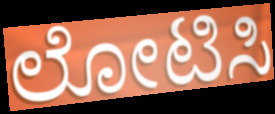
ಲೋಟಿಸಿ